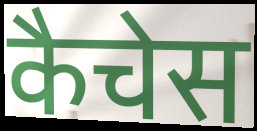
कैचेस